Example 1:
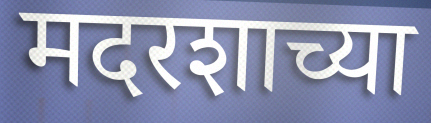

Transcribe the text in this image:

मदरशाच्या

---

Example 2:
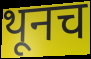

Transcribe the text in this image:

थूनच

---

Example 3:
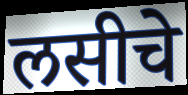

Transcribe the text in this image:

लसीचे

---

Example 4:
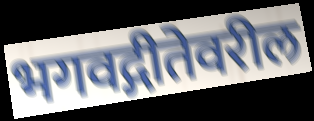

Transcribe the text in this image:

भगवद्गीतेवरील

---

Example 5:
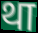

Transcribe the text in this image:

था